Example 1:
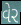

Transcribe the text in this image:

વેર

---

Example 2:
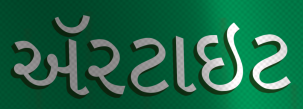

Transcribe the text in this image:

ઍરટાઇટ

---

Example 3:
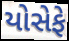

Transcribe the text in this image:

યોસેફે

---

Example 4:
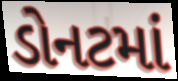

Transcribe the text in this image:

ડોનટમાં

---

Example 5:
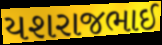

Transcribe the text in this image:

યશરાજભાઈ